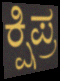
ಕ್ಷಿಪ್ರ